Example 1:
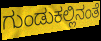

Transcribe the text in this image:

ಗುಂಡುಕಲ್ಲಿನಂತೆ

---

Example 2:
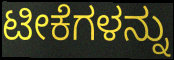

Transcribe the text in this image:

ಟೀಕೆಗಳನ್ನು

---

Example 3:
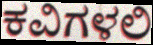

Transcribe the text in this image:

ಕವಿಗಳಲಿ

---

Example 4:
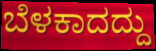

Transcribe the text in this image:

ಬೆಳಕಾದದ್ದು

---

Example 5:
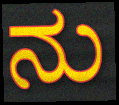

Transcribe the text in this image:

ನು